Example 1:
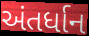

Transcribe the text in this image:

અંતર્ધાન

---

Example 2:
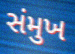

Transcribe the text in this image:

સંમુખ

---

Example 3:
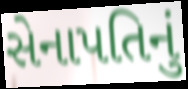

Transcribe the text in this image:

સેનાપતિનું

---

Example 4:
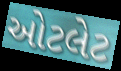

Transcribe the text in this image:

ઓટલેટ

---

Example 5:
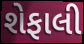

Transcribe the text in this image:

શેફાલી